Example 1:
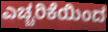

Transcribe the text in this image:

ಎಚ್ಚರಿಕೆಯಿಂದ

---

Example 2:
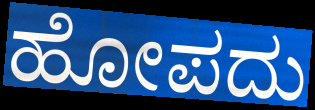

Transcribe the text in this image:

ಹೋಪದು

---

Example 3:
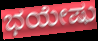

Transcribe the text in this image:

ಭಯೇಷು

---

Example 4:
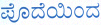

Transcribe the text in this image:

ಪೊದೆಯಿಂದ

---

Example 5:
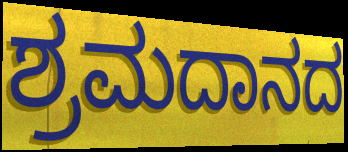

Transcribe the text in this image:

ಶ್ರಮದಾನದ